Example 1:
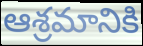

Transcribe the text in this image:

ఆశ్రమానికి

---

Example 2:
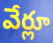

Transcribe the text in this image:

వేర్లూ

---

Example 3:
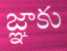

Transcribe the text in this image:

జ్ఞాకు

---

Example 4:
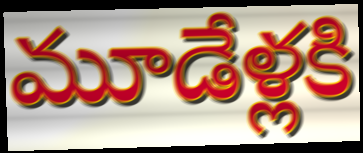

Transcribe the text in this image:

మూడేళ్లకి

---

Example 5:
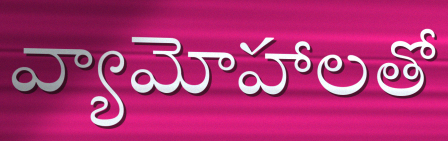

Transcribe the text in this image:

వ్యామోహాలతో